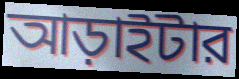
আড়াইটার